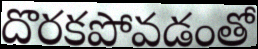
దొరకపోవడంతో